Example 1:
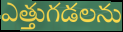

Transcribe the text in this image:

ఎత్తుగడలను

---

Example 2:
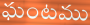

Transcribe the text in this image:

ఘంటము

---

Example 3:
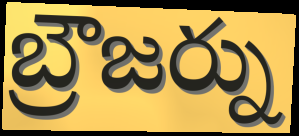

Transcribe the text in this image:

బ్రౌజర్ను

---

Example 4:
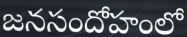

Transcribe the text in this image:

జనసందోహంలో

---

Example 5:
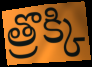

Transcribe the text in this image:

త్రొక్కి